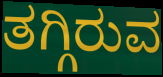
ತಗ್ಗಿರುವ